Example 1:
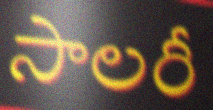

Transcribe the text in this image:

సాలరీ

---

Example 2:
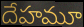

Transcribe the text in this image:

దేహమూ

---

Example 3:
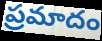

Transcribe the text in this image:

ప్రమాదం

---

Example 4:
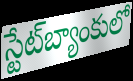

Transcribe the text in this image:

స్టేట్‌బ్యాంకులో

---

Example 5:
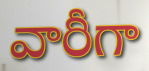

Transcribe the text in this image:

వారీగా